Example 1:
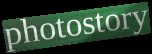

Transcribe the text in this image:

photostory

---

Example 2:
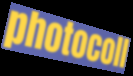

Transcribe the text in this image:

photocoll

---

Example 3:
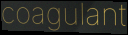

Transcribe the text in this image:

coagulant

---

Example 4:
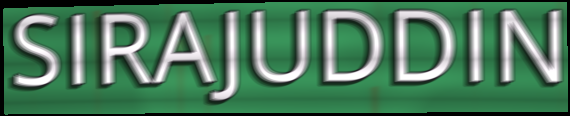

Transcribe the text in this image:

SIRAJUDDIN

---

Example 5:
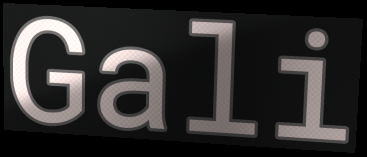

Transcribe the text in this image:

Gali